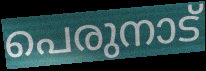
പെരുനാട്